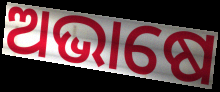
ଅଭାଷେ